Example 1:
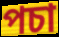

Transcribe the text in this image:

পচা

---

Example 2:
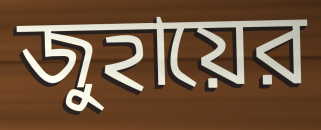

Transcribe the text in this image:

জুহায়ের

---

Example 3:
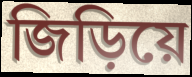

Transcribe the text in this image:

জিড়িয়ে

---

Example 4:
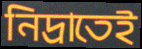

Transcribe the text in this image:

নিদ্রাতেই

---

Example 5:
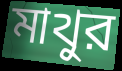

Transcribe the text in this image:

মাথুর